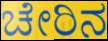
ಚೇರಿನ